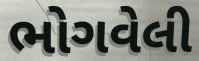
ભોગવેલી